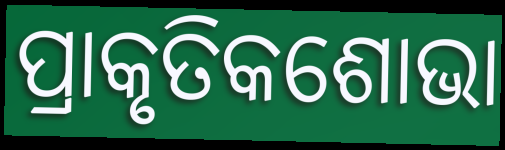
ପ୍ରାକୃତିକଶୋଭା